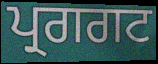
ਪ੍ਰਗਗਟ